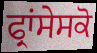
ਫ੍ਰਾਂਸੇਸਕੋ